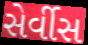
સેર્વીસ